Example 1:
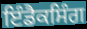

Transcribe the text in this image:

ਇੰਡੈਕਸਿੰਗ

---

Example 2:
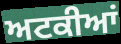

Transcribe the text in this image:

ਅਟਕੀਆਂ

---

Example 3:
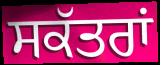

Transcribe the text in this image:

ਸਕੱਤਰਾਂ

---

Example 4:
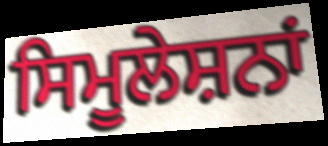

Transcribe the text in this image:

ਸਿਮੂਲੇਸ਼ਨਾਂ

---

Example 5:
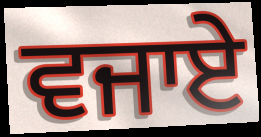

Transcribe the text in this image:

ਵਜਾਏ